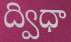
ద్విధా